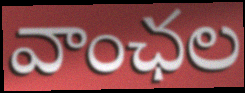
వాంఛల